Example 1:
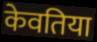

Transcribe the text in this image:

केवतिया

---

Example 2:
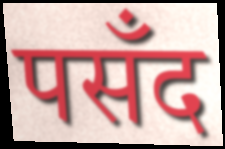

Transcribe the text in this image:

पसँद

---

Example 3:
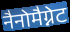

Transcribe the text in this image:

नैनोमैग्नेट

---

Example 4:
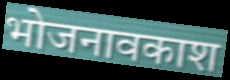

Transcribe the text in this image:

भोजनावकाश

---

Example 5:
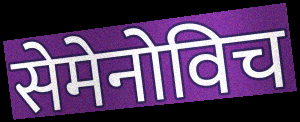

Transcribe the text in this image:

सेमेनोविच